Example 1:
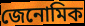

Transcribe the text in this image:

জেনোমিক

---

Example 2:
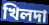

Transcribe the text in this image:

খিলদা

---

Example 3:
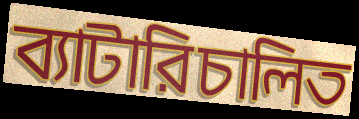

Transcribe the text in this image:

ব্যাটারিচালিত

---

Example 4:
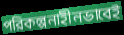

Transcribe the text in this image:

পরিকল্পনাহীনভাবেই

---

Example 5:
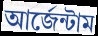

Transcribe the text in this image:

আর্জেন্টাম